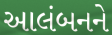
આલંબનને